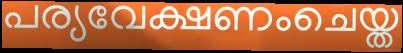
പര്യവേക്ഷണംചെയ്ത